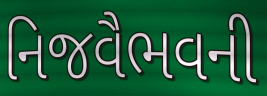
નિજવૈભવની